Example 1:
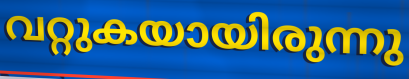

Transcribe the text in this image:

വറ്റുകയായിരുന്നു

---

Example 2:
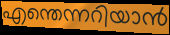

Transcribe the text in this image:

എന്തെന്നറിയാൻ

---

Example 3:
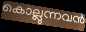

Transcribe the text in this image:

കൊല്ലുന്നവൻ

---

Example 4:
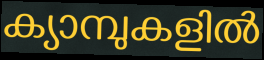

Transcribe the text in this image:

ക്യാമ്പുകളിൽ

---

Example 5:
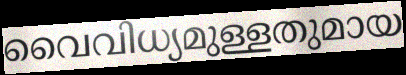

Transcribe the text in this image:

വൈവിധ്യമുള്ളതുമായ